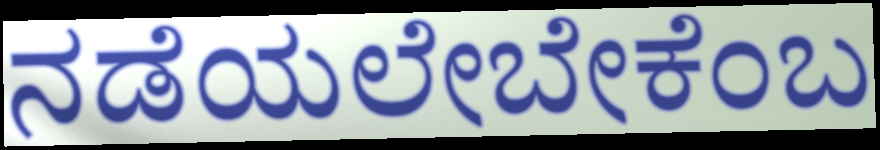
ನಡೆಯಲೇಬೇಕೆಂಬ